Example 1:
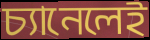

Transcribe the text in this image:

চ্যানেলেই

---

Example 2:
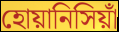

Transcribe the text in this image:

হোয়ানিসিয়াঁ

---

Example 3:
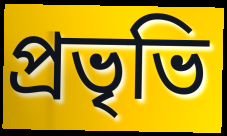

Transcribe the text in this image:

প্রভৃভি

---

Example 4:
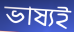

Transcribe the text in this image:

ভাষ্যই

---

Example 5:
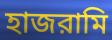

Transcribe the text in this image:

হাজরামি